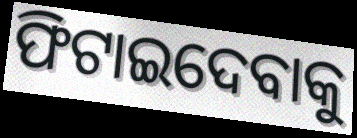
ଫିଟାଇଦେବାକୁ